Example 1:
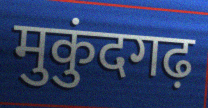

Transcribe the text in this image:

मुकुंदगढ़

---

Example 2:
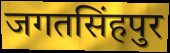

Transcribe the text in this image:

जगतसिंहपुर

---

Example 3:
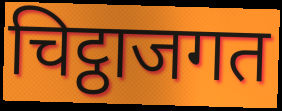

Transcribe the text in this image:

चिट्ठाजगत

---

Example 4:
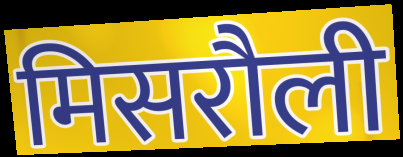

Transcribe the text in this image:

मिसरौली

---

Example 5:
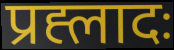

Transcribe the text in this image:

प्रह्लादः